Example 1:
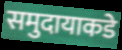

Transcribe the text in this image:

समुदायाकडे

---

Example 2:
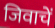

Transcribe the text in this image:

जिवाचें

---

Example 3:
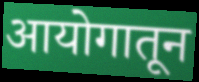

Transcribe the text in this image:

आयोगातून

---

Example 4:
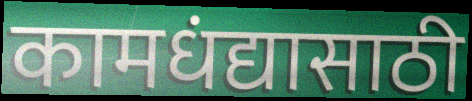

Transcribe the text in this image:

कामधंद्यासाठी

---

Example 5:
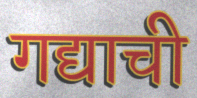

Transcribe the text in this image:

गद्याची